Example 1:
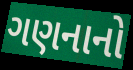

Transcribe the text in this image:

ગણનાનો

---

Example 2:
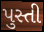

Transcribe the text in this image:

પુસ્તી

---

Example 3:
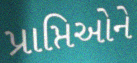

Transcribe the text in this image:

પ્રાપ્તિઓને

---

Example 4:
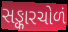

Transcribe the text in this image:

સઙ્કારચોળં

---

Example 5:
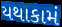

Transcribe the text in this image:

યથાકામં